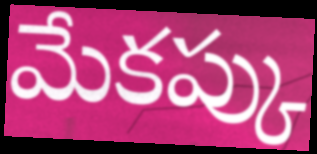
మేకప్కు